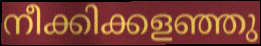
നീക്കിക്കളഞ്ഞു